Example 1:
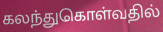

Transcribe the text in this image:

கலந்துகொள்வதில்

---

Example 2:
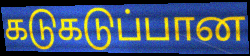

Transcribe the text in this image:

கடுகடுப்பான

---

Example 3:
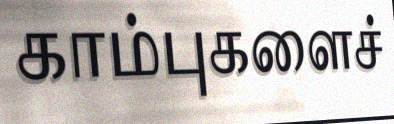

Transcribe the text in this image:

காம்புகளைச்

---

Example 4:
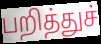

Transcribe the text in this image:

பறித்துச்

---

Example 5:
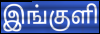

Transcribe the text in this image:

இங்குளி